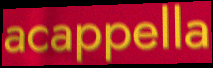
acappella